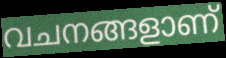
വചനങ്ങളാണ്